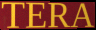
TERA